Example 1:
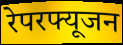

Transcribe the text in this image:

रेपरफ्यूजन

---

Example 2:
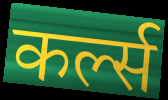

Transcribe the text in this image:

कर्ल्स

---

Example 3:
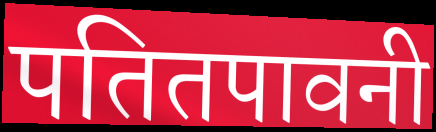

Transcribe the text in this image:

पतितपावनी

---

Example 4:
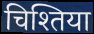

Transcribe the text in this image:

चिश्तिया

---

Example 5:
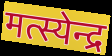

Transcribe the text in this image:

मत्स्येन्द्र